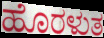
ಹೊರಳುತ